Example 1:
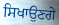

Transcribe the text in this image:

ਸਿਖਾਉਣਗੇ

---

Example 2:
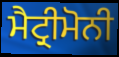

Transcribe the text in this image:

ਮੈਟ੍ਰੀਮੋਨੀ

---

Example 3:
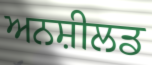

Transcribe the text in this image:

ਅਨਸ਼ੀਲਡ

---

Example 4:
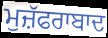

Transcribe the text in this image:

ਮੁਜ਼ੱਫਰਾਬਾਦ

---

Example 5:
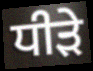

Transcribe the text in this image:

ਧੀੜੇ